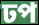
ঢপ